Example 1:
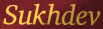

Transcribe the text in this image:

Sukhdev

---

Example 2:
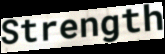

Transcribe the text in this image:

Strength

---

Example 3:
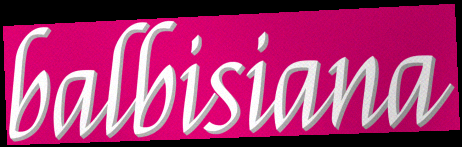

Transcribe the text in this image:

balbisiana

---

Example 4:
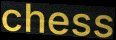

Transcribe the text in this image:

chess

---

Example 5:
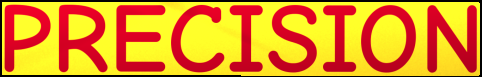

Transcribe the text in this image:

PRECISION